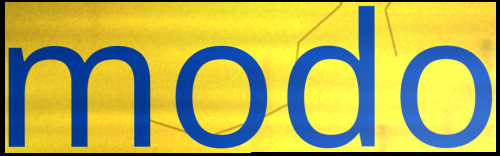
modo